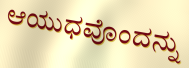
ಆಯುಧವೊಂದನ್ನು